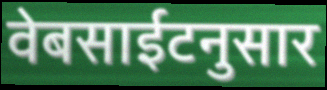
वेबसाईटनुसार